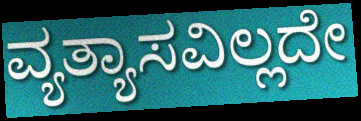
ವ್ಯತ್ಯಾಸವಿಲ್ಲದೇ